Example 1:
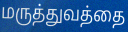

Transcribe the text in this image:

மருத்துவத்தை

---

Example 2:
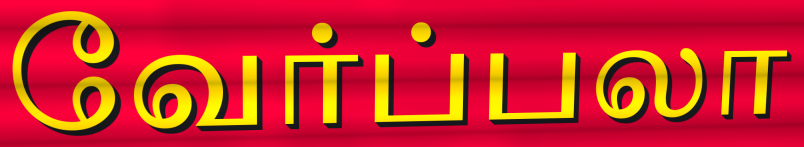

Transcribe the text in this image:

வேர்ப்பலா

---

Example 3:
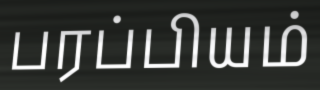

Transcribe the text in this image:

பரப்பியம்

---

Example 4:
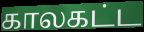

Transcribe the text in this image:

காலகட்ட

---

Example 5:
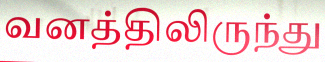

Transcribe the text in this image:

வனத்திலிருந்து